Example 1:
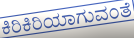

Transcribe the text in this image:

ಕಿರಿಕಿರಿಯಾಗುವಂತೆ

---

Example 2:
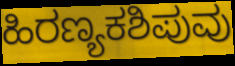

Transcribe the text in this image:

ಹಿರಣ್ಯಕಶಿಪುವು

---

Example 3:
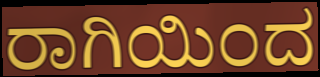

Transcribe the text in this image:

ರಾಗಿಯಿಂದ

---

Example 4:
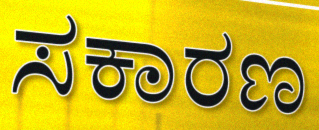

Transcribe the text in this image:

ಸಕಾರಣ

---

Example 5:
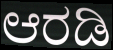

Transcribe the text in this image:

ಆರಡಿ